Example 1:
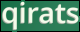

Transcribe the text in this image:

qirats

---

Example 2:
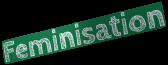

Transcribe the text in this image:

Feminisation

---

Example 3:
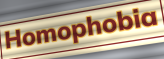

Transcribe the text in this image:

Homophobia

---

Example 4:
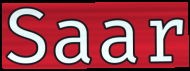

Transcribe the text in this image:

Saar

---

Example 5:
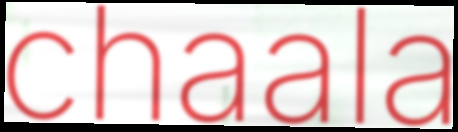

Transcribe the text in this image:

chaala